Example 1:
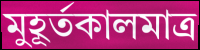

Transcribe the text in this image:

মুহূর্তকালমাত্র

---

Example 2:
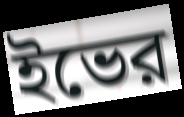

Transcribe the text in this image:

ইভের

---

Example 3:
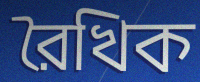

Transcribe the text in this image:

রৈখিক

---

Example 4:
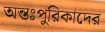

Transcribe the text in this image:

অন্তঃপুরিকাদের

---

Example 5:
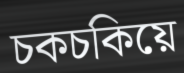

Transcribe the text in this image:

চকচকিয়ে